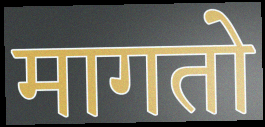
मागतो